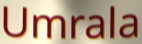
Umrala